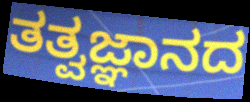
ತತ್ವಜ್ಞಾನದ